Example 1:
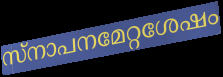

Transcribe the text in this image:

സ്നാപനമേറ്റശേഷം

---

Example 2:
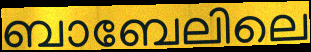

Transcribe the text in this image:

ബാബേലിലെ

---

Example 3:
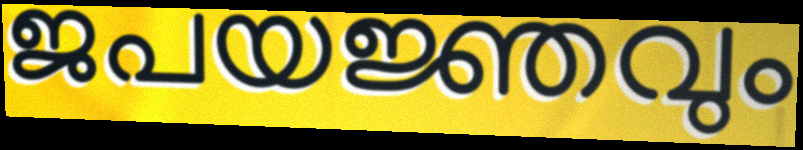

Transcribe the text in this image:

ജപയജ്ഞവും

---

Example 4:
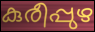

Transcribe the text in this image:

കുരീപ്പുഴ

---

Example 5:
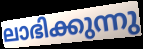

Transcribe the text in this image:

ലാഭിക്കുന്നു